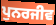
ਪੁਨਰਜੀਵ